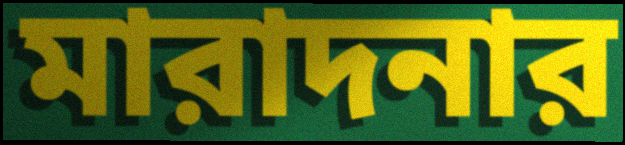
মারাদনার